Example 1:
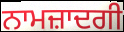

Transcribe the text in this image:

ਨਾਮਜ਼ਾਦਗੀ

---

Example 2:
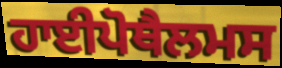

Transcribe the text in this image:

ਹਾਈਪੋਥੈਲਮਸ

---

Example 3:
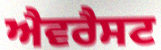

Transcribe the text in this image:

ਐਵਰੈਸਟ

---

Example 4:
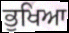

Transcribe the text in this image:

ਭੁਖਿਆ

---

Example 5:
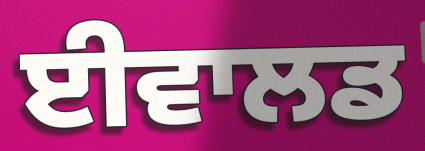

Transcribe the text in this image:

ਈਵਾਲਡ